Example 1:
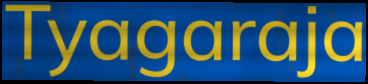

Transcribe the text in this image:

Tyagaraja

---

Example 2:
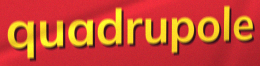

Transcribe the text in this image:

quadrupole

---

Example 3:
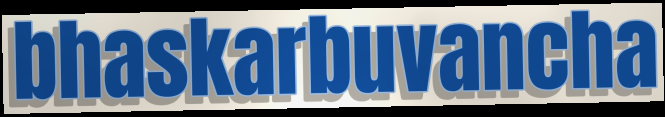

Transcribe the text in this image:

bhaskarbuvancha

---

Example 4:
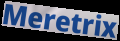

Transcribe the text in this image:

Meretrix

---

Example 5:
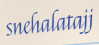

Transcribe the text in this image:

snehalatajj